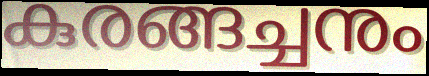
കുരങ്ങച്ചനും